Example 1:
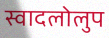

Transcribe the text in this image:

स्वादलोलुप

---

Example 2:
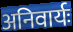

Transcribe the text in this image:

अनिवार्यः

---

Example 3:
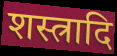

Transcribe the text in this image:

शस्त्रादि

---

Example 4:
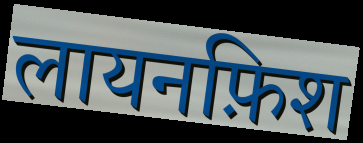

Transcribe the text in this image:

लायनफ़िश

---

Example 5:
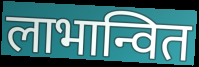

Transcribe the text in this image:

लाभान्वित